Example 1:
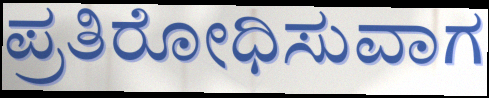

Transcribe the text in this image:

ಪ್ರತಿರೋಧಿಸುವಾಗ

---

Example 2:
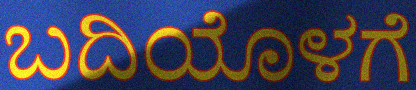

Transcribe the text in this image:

ಬದಿಯೊಳಗೆ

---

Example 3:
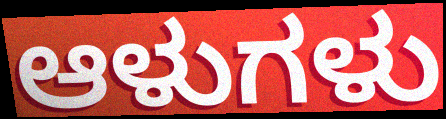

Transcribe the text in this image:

ಆಳುಗಳು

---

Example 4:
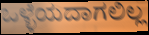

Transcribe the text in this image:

ಒಳ್ಳೆಯದಾಗಲಿಲ್ಲ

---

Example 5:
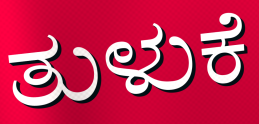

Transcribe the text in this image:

ತುಳುಕೆ